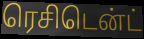
ரெசிடென்ட்